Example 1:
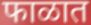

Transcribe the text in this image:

फाळात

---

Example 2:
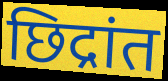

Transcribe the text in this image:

छिद्रांत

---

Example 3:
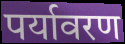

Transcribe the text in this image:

पर्यावरण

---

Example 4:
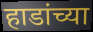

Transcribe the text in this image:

हाडांच्या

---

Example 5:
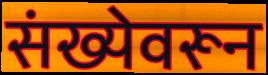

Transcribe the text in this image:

संख्येवरून